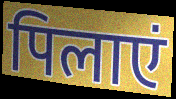
पिलाएं